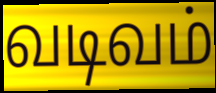
வடிவம்